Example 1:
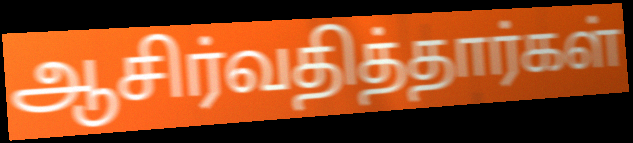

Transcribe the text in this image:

ஆசிர்வதித்தார்கள்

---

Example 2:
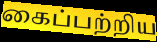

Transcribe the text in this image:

கைப்பற்றிய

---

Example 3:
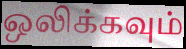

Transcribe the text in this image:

ஒலிக்கவும்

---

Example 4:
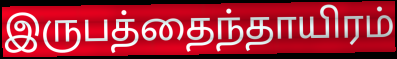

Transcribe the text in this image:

இருபத்தைந்தாயிரம்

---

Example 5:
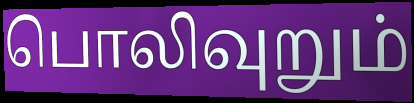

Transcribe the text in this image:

பொலிவுறும்